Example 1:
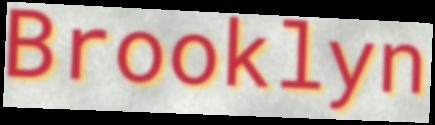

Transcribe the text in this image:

Brooklyn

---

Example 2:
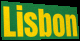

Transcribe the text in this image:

Lisbon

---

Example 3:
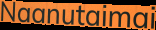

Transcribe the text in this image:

Naanutaimai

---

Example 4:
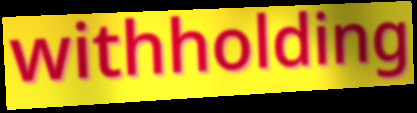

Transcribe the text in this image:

withholding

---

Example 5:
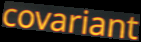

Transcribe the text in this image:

covariant